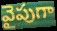
వైపుగా